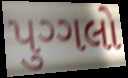
પુગ્ગલો